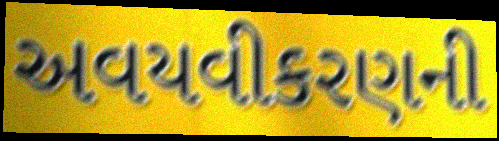
અવયવીકરણની